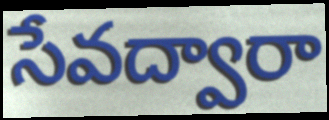
సేవద్వారా